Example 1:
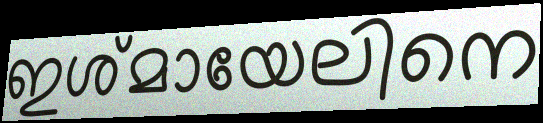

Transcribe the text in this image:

ഇശ്മായേലിനെ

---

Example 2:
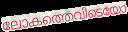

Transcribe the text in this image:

ലോകത്തെവിടെയോ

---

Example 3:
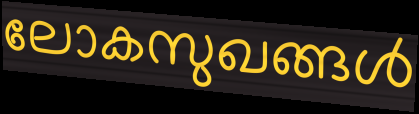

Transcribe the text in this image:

ലോകസുഖങ്ങൾ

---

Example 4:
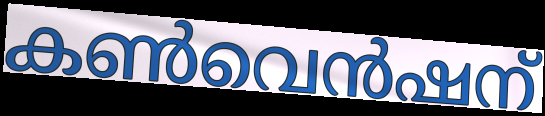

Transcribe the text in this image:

കൺവെൻഷന്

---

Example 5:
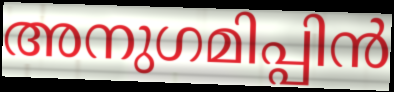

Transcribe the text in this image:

അനുഗമിപ്പിൻ